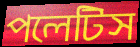
পলেটিস